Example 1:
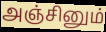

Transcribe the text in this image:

அஞ்சினும்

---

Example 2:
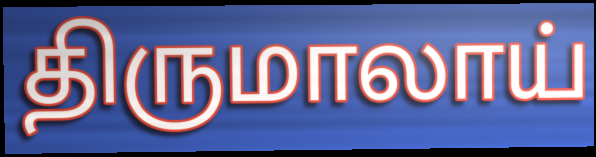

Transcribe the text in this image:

திருமாலாய்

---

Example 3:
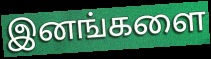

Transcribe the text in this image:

இனங்களை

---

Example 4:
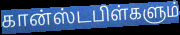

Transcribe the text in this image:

கான்ஸ்டபிள்களும்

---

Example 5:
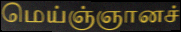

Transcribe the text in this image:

மெய்ஞ்ஞானச்